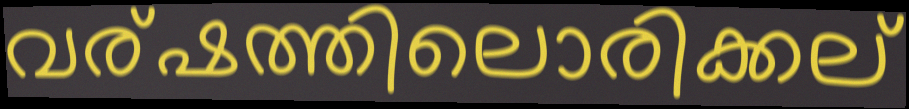
വര്ഷത്തിലൊരിക്കല്